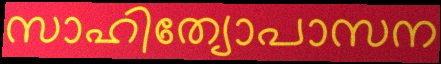
സാഹിത്യോപാസന